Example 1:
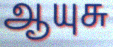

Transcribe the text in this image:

ஆயுசு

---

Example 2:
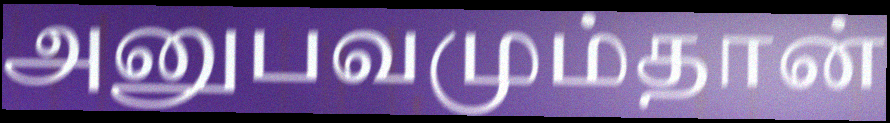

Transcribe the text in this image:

அனுபவமும்தான்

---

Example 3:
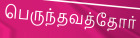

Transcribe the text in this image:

பெருந்தவத்தோர்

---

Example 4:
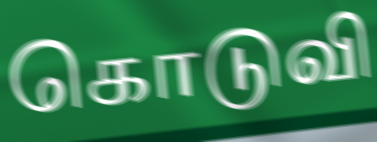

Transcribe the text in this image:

கொடுவி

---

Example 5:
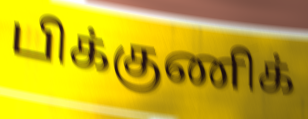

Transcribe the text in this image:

பிக்குணிக்